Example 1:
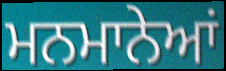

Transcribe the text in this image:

ਮਨਮਾਨੇਆਂ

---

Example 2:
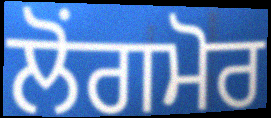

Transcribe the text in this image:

ਲੋਂਗਮੋਰ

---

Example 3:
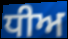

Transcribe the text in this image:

ਧੀਅ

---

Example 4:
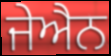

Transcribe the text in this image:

ਜੇਐਨ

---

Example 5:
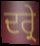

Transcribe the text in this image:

ਦਰ੍ਰੇ